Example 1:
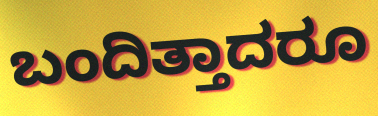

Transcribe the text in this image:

ಬಂದಿತ್ತಾದರೂ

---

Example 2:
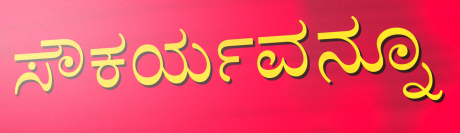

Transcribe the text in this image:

ಸೌಕರ್ಯವನ್ನೂ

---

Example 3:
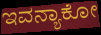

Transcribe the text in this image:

ಇವನ್ಯಾಕೋ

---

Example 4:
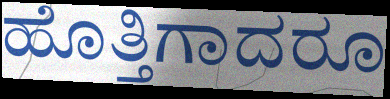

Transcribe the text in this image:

ಹೊತ್ತಿಗಾದರೂ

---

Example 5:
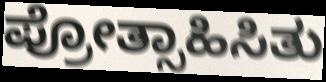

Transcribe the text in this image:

ಪ್ರೋತ್ಸಾಹಿಸಿತು